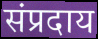
संप्रदाय